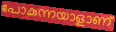
പോകുന്നയാളാണ്